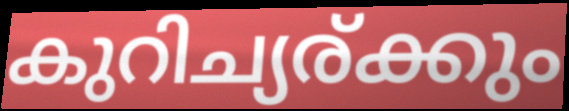
കുറിച്യര്ക്കും